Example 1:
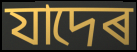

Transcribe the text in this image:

যাদেৰ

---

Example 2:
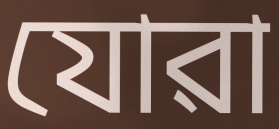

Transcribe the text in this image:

যোৱা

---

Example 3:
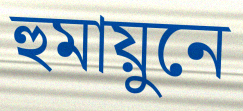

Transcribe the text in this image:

হুমায়ুনে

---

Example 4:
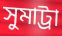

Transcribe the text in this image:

সুমাট্ৰা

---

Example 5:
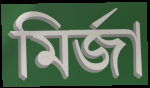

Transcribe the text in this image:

মিৰ্জা